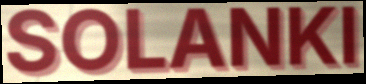
SOLANKI